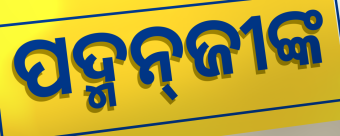
ପଦ୍ମନ୍‌ଜୀଙ୍କ